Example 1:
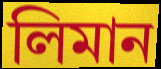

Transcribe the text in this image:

লিমান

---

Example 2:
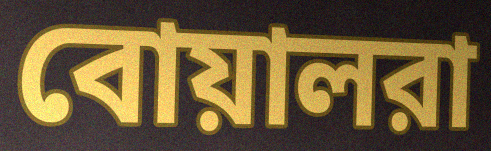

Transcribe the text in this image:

বোয়ালরা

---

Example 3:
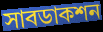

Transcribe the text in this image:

সাবডাকশন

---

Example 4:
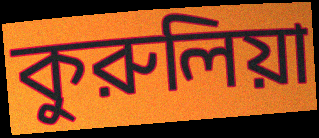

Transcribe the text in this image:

কুরুলিয়া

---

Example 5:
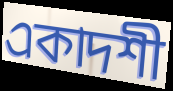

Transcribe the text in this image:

একাদশী